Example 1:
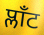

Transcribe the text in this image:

प्लाँट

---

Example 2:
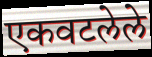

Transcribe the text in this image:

एकवटलेले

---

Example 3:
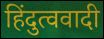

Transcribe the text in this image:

हिंदुत्ववादी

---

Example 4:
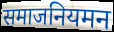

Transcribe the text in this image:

समाजनियमन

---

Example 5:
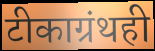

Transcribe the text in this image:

टीकाग्रंथही